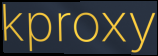
kproxy